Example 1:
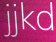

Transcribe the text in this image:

jjkd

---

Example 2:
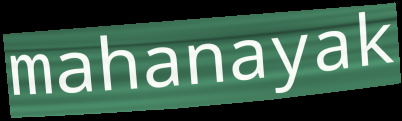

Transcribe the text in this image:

mahanayak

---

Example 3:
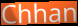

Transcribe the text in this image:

Chhan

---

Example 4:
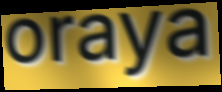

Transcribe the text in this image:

oraya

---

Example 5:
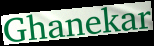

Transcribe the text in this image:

Ghanekar